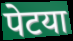
पेटया